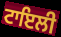
ਟਾਇਲੀ